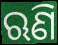
ଋଣି